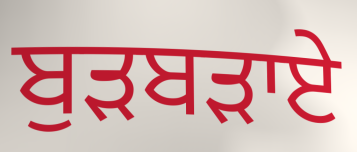
ਬੁੜਬੜਾਏ